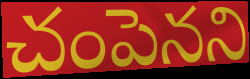
చంపెనని